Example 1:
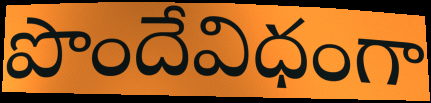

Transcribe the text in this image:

పొందేవిధంగా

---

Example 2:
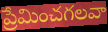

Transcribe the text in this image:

ప్రేమించగలవా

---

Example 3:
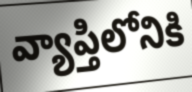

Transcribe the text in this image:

వ్యాప్తిలోనికి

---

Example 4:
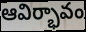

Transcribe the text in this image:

ఆవిర్భావం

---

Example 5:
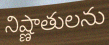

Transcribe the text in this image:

నిష్ణాతులను